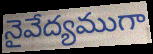
నైవేద్యముగా